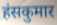
हंसकुमार